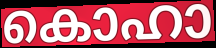
കൊഹാ